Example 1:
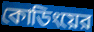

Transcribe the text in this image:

কোডিংয়ের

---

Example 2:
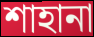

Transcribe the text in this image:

শাহানা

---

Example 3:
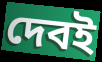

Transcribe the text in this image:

দেবই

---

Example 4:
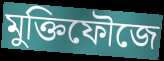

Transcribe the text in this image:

মুক্তিফৌজে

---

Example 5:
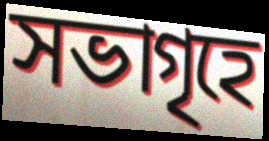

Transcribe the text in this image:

সভাগৃহে